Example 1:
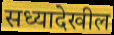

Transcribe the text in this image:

सध्यादेखील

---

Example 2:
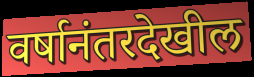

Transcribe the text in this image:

वर्षानंतरदेखील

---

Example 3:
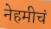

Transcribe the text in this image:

नेहमीचं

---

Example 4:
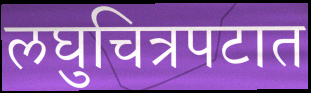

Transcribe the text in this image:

लघुचित्रपटात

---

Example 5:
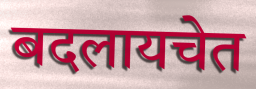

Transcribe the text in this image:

बदलायचेत